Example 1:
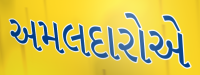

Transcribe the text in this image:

અમલદારોએ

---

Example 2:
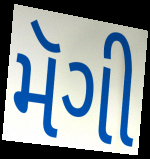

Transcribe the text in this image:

મૅગી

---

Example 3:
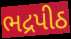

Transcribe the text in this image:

ભદ્રપીઠ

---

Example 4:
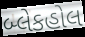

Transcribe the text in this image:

બ્લેકહોલ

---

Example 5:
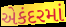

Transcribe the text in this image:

એકંદરમાં